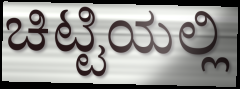
ಚಿಟ್ಟಿಯಲ್ಲಿ